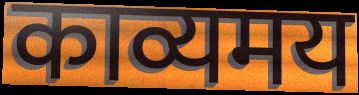
काव्यमय